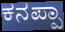
ಕನಪ್ಪಾ